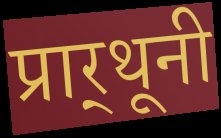
प्रार्थूनी